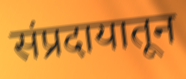
संप्रदायातून